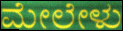
ಮೇಲೇಳು